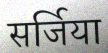
सर्जिया